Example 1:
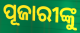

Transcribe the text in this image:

ପୂଜାରୀଙ୍କୁ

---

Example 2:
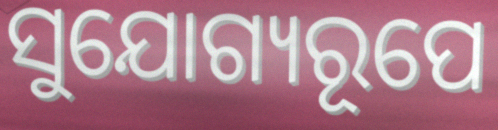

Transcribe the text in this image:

ସୁଯୋଗ୍ୟରୂପେ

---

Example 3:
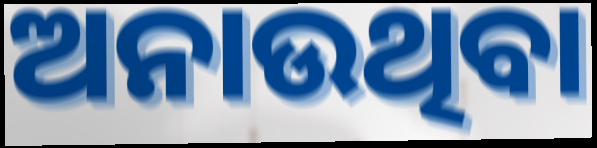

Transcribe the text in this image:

ଅନାଉଥିବା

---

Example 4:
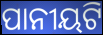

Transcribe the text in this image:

ପାନୀୟଟି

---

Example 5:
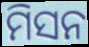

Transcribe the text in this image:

ମିସନ